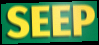
SEEP